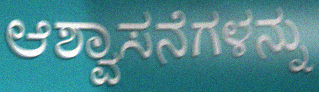
ಆಶ್ವಾಸನೆಗಳನ್ನು